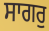
ਸਾਗਰੁ